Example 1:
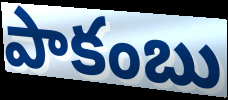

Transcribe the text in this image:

పాకంబు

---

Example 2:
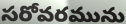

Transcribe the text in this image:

సరోవరమును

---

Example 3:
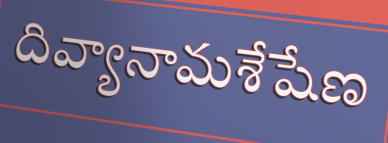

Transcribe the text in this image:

దివ్యానామశేషేణ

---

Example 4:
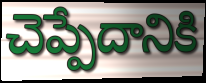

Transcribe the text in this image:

చెప్పేదానికి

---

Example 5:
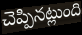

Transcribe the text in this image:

చెప్పినట్లుంది